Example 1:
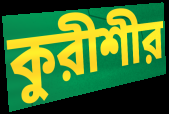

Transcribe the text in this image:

কুরীশীর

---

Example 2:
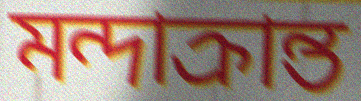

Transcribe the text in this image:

মন্দাক্রান্ত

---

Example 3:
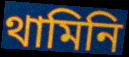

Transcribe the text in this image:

থামিনি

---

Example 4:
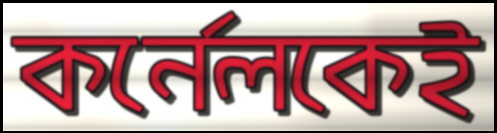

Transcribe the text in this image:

কর্নেলকেই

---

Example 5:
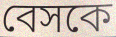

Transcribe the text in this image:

বেসকে